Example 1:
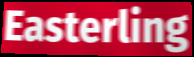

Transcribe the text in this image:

Easterling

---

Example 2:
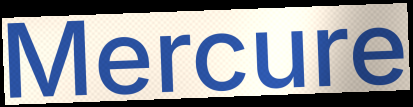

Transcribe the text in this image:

Mercure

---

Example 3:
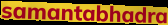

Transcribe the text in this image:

samantabhadra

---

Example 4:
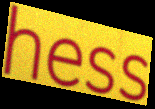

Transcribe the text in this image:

hess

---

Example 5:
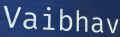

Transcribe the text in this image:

Vaibhav